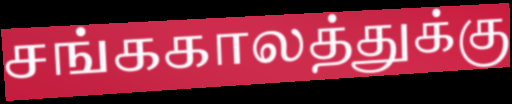
சங்ககாலத்துக்கு